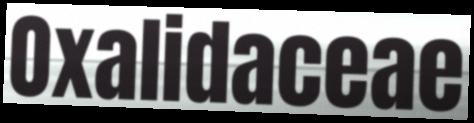
Oxalidaceae